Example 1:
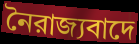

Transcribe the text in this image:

নৈরাজ্যবাদে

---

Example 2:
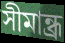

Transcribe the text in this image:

সীমান্ধ্র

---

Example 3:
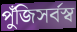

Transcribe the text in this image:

পুঁজিসর্বস্ব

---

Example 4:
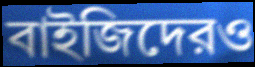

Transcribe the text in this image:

বাইজিদেরও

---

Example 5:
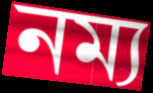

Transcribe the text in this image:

নম্য